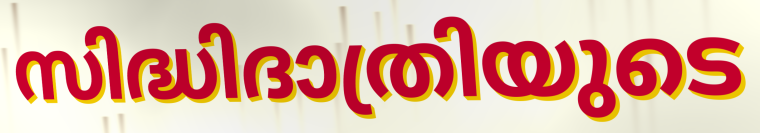
സിദ്ധിദാത്രിയുടെ